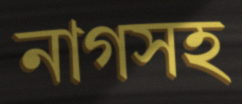
নাগসহ